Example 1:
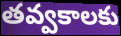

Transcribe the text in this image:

తవ్వకాలకు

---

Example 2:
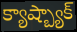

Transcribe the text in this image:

క్యాష్బ్యాక్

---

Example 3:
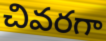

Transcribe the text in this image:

చివరగా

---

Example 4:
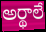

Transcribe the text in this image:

అర్థాలే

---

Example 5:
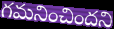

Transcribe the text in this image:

గమనించిందని